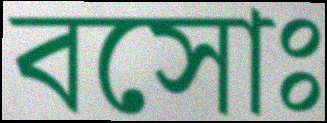
বসোঃ